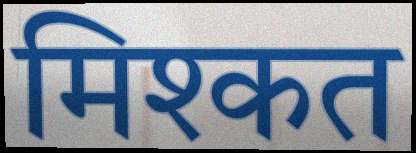
मिश्कत